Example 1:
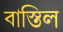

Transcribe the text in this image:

বাস্তিল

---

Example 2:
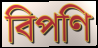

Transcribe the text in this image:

বিপণি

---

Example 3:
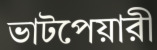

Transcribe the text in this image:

ভাটপেয়ারী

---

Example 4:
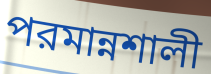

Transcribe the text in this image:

পরমান্নশালী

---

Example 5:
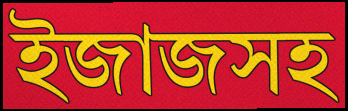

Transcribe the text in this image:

ইজাজসহ